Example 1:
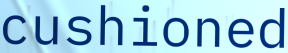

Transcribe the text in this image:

cushioned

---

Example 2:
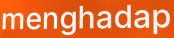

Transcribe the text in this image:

menghadap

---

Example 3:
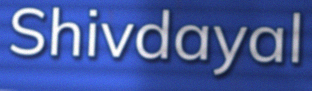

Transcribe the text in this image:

Shivdayal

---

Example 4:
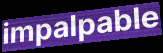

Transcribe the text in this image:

impalpable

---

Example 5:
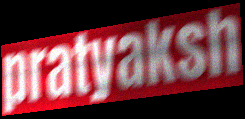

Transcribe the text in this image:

pratyaksh